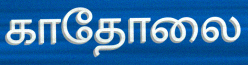
காதோலை